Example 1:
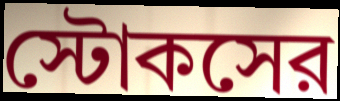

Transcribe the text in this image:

স্টোকসের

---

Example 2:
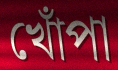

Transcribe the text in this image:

খোঁপা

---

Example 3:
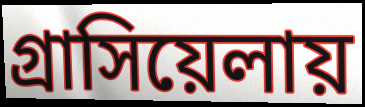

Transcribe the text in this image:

গ্রাসিয়েলায়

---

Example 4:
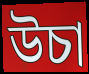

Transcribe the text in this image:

উচা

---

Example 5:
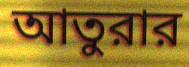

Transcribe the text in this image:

আতুরার